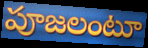
పూజలంటూ